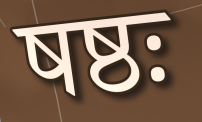
षष्ठः